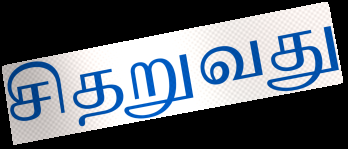
சிதறுவது